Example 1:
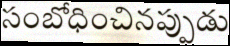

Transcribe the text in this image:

సంబోధించినప్పుడు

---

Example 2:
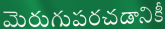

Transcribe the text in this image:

మెరుగుపరచడానికీ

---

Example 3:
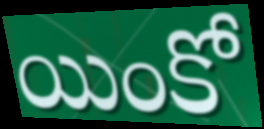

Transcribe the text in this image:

యింకో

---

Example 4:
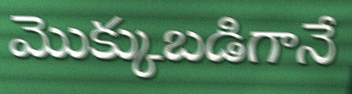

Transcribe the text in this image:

మొక్కుబడిగానే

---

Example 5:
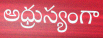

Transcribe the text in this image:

అధ్రుస్యంగా